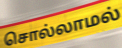
சொல்லாமல்